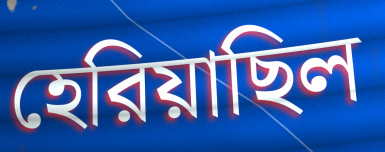
হেরিয়াছিল